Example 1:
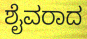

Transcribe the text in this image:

ಶೈವರಾದ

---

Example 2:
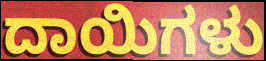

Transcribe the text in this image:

ದಾಯಿಗಳು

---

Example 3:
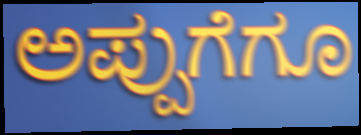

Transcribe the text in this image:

ಅಪ್ಪುಗೆಗೂ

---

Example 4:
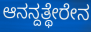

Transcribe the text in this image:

ಆನನ್ದತ್ಥೇರೇನ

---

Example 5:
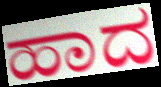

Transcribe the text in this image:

ಹಾದ